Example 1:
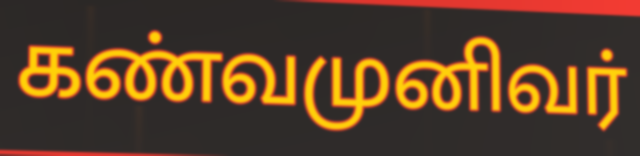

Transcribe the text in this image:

கண்வமுனிவர்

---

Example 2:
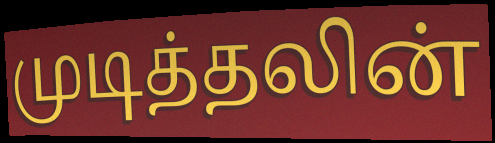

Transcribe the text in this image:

முடித்தலின்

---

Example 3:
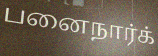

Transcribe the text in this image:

பனைநார்க்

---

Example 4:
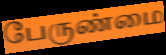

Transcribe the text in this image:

பேருண்மை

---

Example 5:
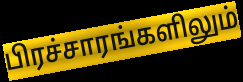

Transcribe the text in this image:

பிரச்சாரங்களிலும்